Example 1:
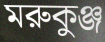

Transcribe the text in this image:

মরুকুঞ্জ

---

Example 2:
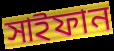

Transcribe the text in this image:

সাইফান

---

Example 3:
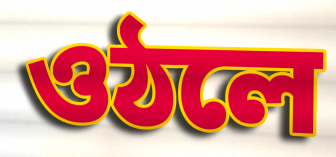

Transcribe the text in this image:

ওঠলে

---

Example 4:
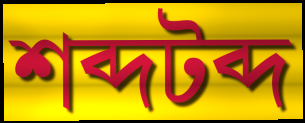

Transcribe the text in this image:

শব্দটব্দ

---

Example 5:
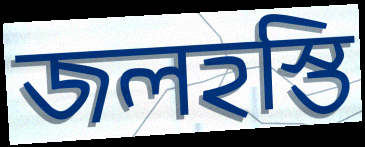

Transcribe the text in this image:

জলহস্তি